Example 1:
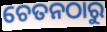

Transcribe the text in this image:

ଚେତନଠାରୁ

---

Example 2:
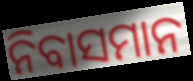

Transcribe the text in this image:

ନିବାସମାନ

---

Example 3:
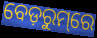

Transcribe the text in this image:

ବେଡ଼ରୁମ୍‌ରେ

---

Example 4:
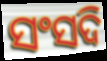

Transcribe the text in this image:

ସଂସଦି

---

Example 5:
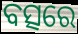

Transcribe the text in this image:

ବତ୍ସରେ